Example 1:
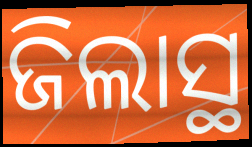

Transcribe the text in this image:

ଜିଲାସ୍ଥ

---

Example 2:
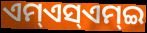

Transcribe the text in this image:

ଏମ୍ଏସ୍ଏମ୍ଇ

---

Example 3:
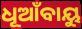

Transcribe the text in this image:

ଧୂଆଁବାୟୁ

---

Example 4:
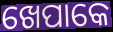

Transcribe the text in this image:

ଖେପାକେ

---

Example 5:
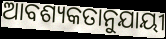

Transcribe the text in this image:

ଆବଶ୍ୟକତାନୁଯାୟୀ